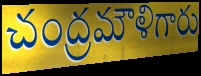
చంద్రమౌళిగారు